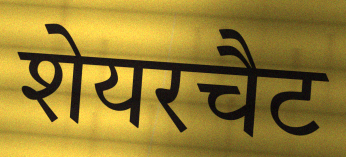
शेयरचैट